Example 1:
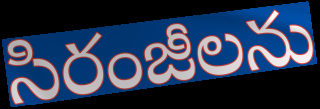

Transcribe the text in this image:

సిరంజీలను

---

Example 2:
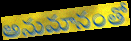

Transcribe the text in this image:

అనుమానంతో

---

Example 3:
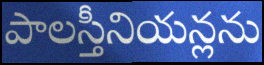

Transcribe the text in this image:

పాలస్తీనియన్లను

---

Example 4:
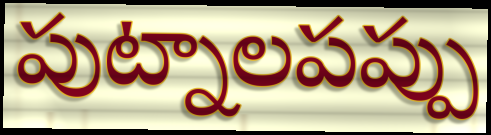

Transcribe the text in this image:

పుట్నాలపప్పు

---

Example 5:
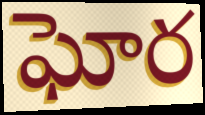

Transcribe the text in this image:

ఘోర